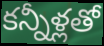
కన్నీళ్లతో